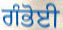
ਗੰਭੋਈ